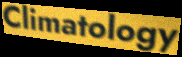
Climatology